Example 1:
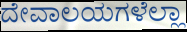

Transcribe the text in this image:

ದೇವಾಲಯಗಳೆಲ್ಲಾ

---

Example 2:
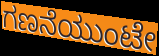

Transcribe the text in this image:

ಗಣನೆಯುಂಟೇ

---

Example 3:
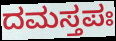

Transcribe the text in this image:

ದಮಸ್ತಪಃ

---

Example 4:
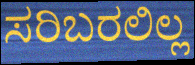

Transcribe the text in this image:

ಸರಿಬರಲಿಲ್ಲ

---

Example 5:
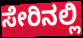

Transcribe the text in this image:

ಸೇರಿನಲ್ಲಿ